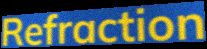
Refraction